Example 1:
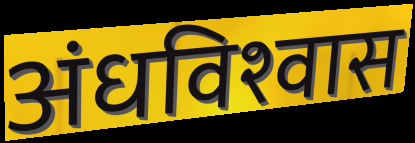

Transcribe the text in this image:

अंधविश्वास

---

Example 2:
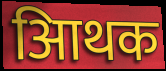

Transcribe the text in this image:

आिथक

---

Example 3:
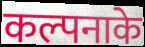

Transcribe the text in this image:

कल्पनाके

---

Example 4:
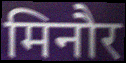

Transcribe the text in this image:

मिनौर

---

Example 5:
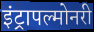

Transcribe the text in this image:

इंट्रापल्मोनरी